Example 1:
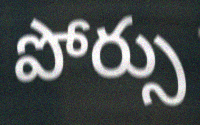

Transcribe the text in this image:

పోర్సు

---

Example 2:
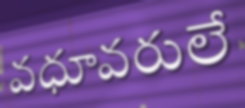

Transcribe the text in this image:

వధూవరులే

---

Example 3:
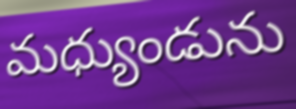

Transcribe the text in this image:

మధ్యుండును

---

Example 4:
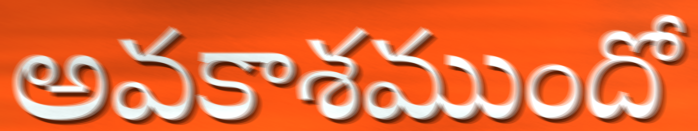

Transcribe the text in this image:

అవకాశముందో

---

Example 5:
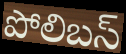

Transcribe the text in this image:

పోలిబస్